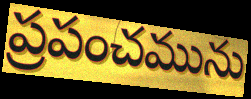
ప్రపంచమును